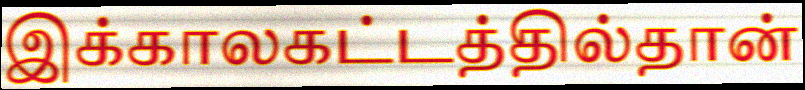
இக்காலகட்டத்தில்தான்